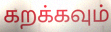
கறக்கவும்